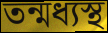
তন্মধ্যস্থ